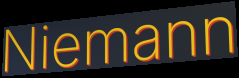
Niemann